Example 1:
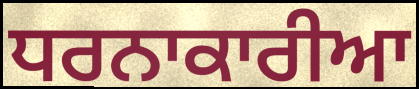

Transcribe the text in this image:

ਧਰਨਾਕਾਰੀਆ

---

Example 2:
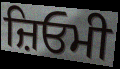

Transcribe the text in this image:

ਜ਼ਿਓਮੀ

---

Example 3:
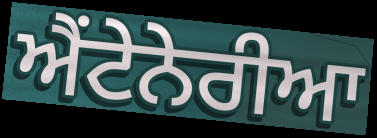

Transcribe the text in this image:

ਐਂਟੇਨੇਰੀਆ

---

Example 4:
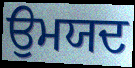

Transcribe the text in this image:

ਉਮਯਦ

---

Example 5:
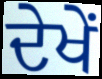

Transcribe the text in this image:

ਦੇਖੇਂ